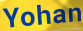
Yohan